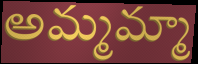
అమ్మమ్మా